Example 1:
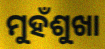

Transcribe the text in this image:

ମୁହଁଶୁଖା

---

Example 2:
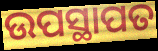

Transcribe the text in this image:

ଉପସ୍ଥାପତ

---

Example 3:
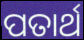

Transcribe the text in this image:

ପତାର୍ଥ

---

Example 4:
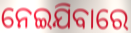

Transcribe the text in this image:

ନେଇଯିବାରେ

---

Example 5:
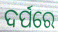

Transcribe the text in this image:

ଦର୍ପରେ